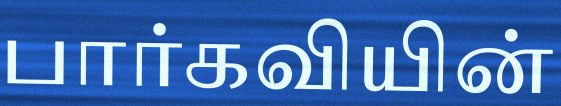
பார்கவியின்